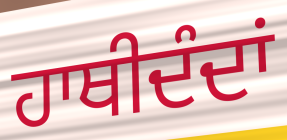
ਹਾਥੀਦੰਦਾਂ